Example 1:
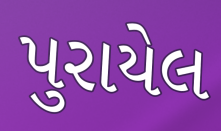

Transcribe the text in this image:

પુરાયેલ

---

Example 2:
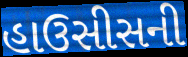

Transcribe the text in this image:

હાઉસીસની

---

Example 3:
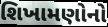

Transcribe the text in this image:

શિખામણોનો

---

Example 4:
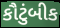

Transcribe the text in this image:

કૌટુંબીક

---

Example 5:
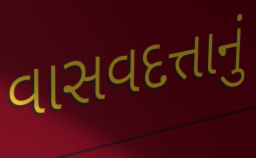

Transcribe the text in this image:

વાસવદત્તાનું